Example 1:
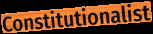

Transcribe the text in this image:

Constitutionalist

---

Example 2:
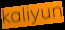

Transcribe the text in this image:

kaliyun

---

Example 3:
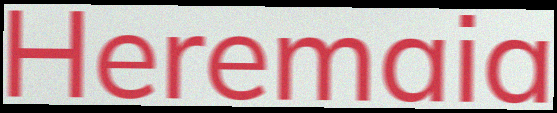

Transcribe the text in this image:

Heremaia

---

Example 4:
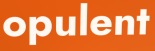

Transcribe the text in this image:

opulent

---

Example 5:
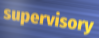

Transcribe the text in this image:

supervisory